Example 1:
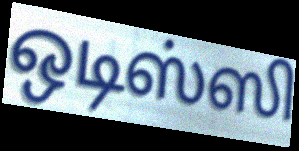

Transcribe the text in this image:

ஒடிஸ்ஸி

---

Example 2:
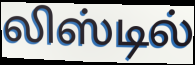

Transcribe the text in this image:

லிஸ்டில்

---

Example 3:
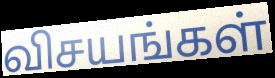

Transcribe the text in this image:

விசயங்கள்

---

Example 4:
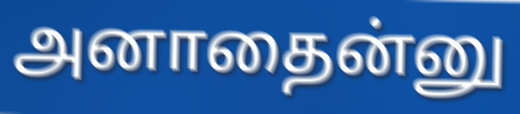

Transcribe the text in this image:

அனாதைன்னு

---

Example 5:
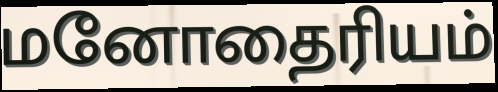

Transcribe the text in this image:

மனோதைரியம்